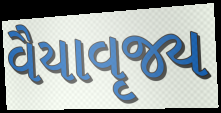
વૈયાવૃજ્ય